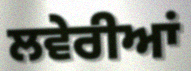
ਲਵੇਰੀਆਂ